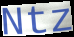
Ntz